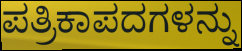
ಪತ್ರಿಕಾಪದಗಳನ್ನು